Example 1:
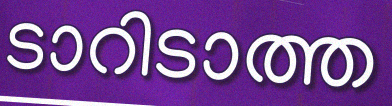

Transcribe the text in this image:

ടാറിടാത്ത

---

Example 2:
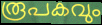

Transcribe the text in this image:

രൂപകവും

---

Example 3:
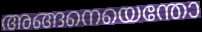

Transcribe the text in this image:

അങ്ങനെയെന്തോ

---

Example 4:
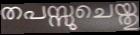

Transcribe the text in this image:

തപസ്സുചെയ്തു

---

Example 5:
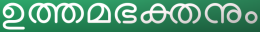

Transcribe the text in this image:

ഉത്തമഭക്തനും